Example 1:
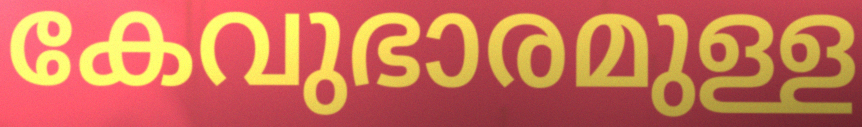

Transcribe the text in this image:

കേവുഭാരമുള്ള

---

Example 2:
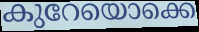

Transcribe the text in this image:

കുറേയൊക്കെ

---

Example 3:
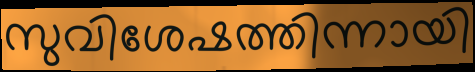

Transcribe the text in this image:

സുവിശേഷത്തിന്നായി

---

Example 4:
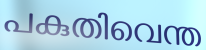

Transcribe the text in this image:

പകുതിവെന്ത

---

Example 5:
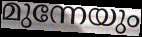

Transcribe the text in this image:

മുന്നേയും